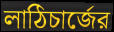
লাঠিচার্জের